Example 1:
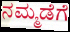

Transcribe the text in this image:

ನಮ್ಮಡೆಗೆ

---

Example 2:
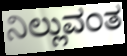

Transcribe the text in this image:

ನಿಲ್ಲುವಂತ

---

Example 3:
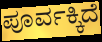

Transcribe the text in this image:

ಪೂರ್ವಕ್ಕಿದೆ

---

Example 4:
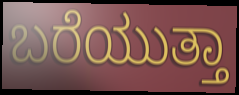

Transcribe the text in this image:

ಬರೆಯುತ್ತಾ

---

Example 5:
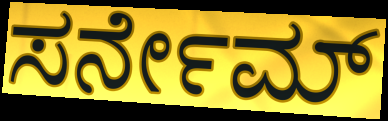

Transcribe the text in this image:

ಸರ್ನೇಮ್